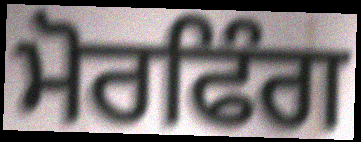
ਮੋਰਫਿੰਗ